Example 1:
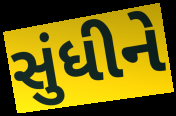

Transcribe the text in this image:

સુંધીને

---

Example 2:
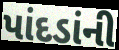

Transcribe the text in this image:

પાંદડાંની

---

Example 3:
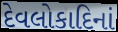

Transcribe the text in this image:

દેવલોકાદિનાં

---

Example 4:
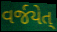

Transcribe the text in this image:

વર્જયેત્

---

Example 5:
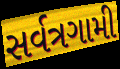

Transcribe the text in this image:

સર્વત્રગામી